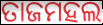
ତାଜମହଲ